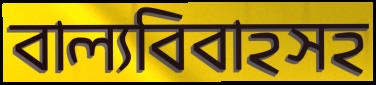
বাল্যবিবাহসহ